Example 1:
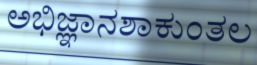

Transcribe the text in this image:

ಅಭಿಜ್ಞಾನಶಾಕುಂತಲ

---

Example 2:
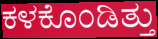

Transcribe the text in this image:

ಕಳಕೊಂಡಿತ್ತು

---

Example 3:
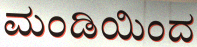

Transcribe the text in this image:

ಮಂಡಿಯಿಂದ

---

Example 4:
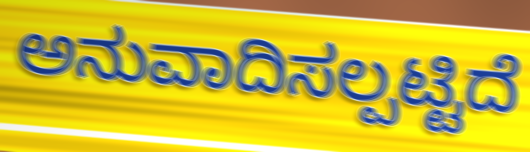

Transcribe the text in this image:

ಅನುವಾದಿಸಲ್ಪಟ್ಟಿದೆ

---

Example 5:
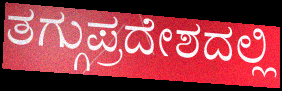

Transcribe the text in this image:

ತಗ್ಗುಪ್ರದೇಶದಲ್ಲಿ